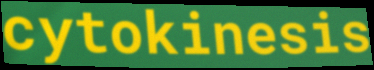
cytokinesis